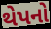
થેપનો